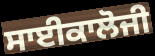
ਸਾਈਕਾਲੋਜੀ